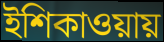
ইশিকাওয়ায়